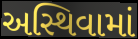
અસ્થિવામાં